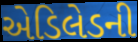
એડિલેડની